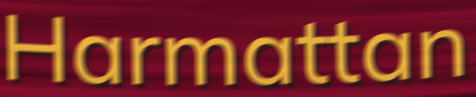
Harmattan